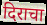
दिराचा